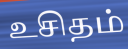
உசிதம்